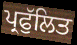
ਪ੍ਰਫੁੱਲਿਤ